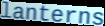
lanterns